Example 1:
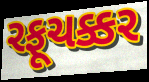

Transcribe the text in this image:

રફૂચક્કર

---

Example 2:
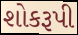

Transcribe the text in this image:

શોકરૂપી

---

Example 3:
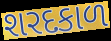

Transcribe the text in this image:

શરદકાળ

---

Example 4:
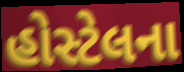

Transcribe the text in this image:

હોસ્ટેલના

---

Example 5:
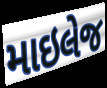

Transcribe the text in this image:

માઇલેજ